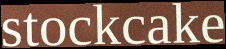
stockcake